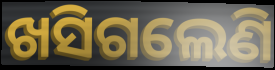
ଖସିଗଲେଣି